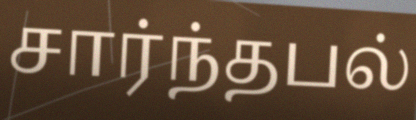
சார்ந்தபல்